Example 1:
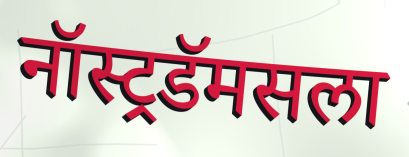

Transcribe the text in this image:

नॉस्ट्रडॅमसला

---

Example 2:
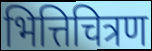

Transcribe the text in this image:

भित्तिचित्रण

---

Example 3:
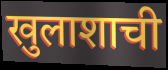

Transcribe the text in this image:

खुलाशाची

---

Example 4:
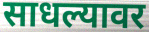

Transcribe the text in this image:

साधल्यावर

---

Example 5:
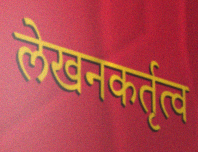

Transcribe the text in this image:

लेखनकर्तृत्व